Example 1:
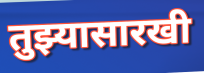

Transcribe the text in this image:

तुझ्यासारखी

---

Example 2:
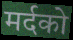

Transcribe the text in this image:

मर्दको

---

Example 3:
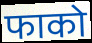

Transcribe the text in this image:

फाको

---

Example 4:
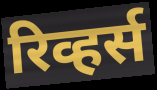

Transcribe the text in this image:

रिव्हर्स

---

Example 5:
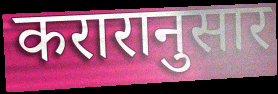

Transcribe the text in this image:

करारानुसार